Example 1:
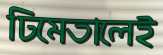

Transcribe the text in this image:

ঢিমেতালেই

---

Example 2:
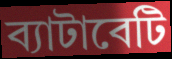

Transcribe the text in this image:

ব্যাটাবেটি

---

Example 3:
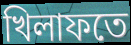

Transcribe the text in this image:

খিলাফতে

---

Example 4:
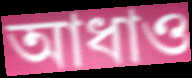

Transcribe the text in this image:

আধাও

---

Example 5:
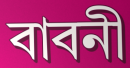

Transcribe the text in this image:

বাবনী